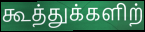
கூத்துக்களிற்